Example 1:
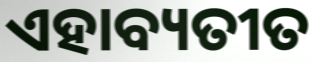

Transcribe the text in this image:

ଏହାବ୍ୟତୀତ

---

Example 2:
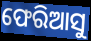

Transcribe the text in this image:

ଫେରିଆସୁ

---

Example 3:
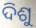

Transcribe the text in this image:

ଦିଶୁ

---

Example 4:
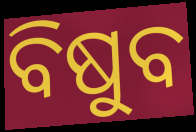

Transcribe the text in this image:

ବିଷୁବ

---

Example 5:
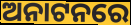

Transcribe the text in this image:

ଅନାଟନରେ